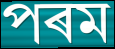
পৰম